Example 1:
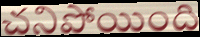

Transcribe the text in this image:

చనిపోయింది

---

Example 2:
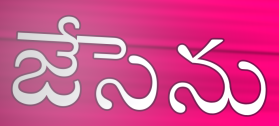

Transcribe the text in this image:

జేసెను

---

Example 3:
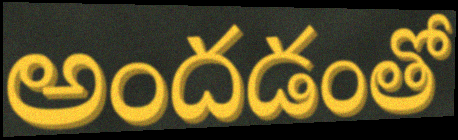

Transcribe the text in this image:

అందడంతో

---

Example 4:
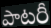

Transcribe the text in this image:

పాటరీ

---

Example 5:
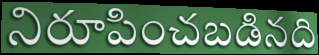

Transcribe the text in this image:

నిరూపించబడినది